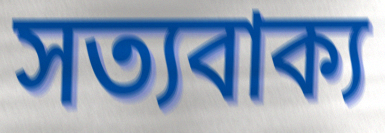
সত্যবাক্য